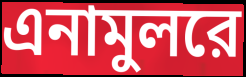
এনামুলরে